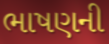
ભાષણની